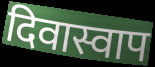
दिवास्वाप